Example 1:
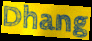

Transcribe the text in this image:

Dhang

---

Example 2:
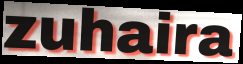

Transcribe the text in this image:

zuhaira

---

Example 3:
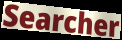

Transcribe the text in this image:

Searcher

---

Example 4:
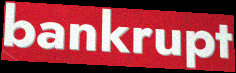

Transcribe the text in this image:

bankrupt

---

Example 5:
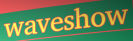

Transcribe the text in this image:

waveshow